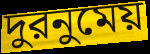
দুরনুমেয়